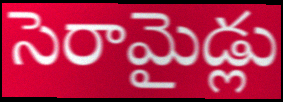
సెరామైడ్లు